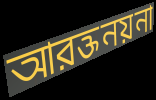
আরক্তনয়না